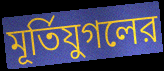
মূর্তিযুগলের